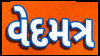
વેદમત્ર